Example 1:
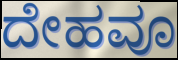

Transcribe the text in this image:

ದೇಹವೂ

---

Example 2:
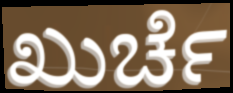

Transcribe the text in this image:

ಖುರ್ಚೆ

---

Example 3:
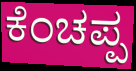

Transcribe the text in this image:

ಕೆಂಚಪ್ಪ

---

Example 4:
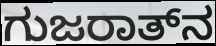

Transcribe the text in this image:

ಗುಜರಾತ್‍ನ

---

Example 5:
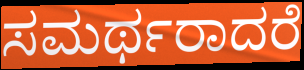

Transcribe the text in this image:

ಸಮರ್ಥರಾದರೆ